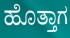
ಹೊತ್ತಾಗ